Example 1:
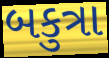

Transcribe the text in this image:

બકુત્રા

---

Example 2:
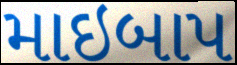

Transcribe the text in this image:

માઇબાપ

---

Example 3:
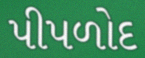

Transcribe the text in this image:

પીપળોદ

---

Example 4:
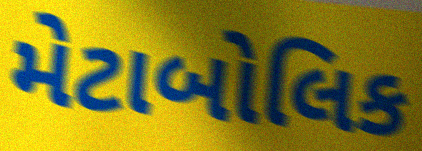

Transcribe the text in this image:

મેટાબોલિક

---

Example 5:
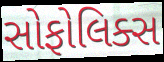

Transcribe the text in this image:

સોફોલિક્સ